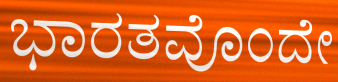
ಭಾರತವೊಂದೇ